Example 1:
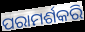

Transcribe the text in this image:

ପରାମର୍ଶକରି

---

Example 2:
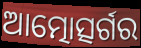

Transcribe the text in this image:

ଆତ୍ମୋତ୍ସର୍ଗର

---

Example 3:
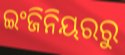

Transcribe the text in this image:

ଇଂଜିନିୟରରୁ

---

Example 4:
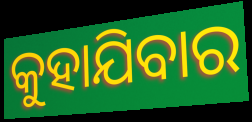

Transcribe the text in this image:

କୁହାଯିବାର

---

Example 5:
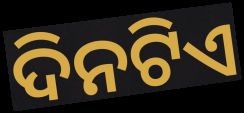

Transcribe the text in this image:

ଦିନଟିଏ